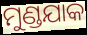
ମୁଣ୍ଡଯାକ